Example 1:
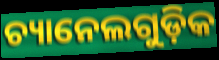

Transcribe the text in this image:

ଚ୍ୟାନେଲଗୁଡ଼ିକ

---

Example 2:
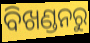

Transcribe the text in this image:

ବିଖଣ୍ଡନରୁ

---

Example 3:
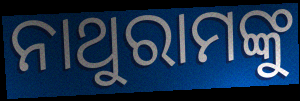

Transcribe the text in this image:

ନାଥୁରାମଙ୍କୁ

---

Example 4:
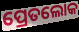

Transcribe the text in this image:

ପ୍ରେତଲୋକ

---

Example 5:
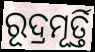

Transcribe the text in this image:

ରୂଦ୍ରମୂର୍ତ୍ତି